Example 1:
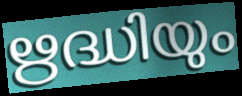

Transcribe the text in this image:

ഋദ്ധിയും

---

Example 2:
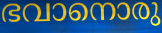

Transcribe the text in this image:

ഭവാനൊരു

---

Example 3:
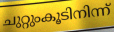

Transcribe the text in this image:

ചുറ്റുംകൂടിനിന്ന്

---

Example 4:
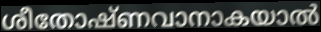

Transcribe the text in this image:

ശീതോഷ്ണവാനാകയാൽ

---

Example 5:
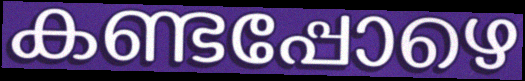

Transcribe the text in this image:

കണ്ടപ്പോഴെ